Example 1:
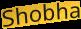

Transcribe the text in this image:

Shobha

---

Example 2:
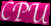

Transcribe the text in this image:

CPU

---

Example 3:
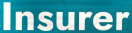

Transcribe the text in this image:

Insurer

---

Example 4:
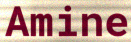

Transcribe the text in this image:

Amine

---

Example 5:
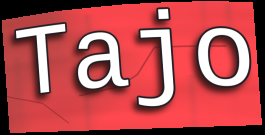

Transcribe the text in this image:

Tajo